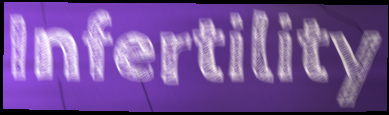
Infertility